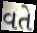
વતે